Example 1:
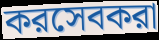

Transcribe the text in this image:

করসেবকরা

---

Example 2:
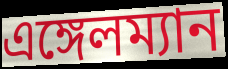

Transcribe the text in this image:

এঙ্গেলম্যান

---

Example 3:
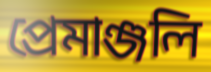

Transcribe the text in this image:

প্রেমাঞ্জলি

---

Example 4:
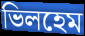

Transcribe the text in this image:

ভিলহেম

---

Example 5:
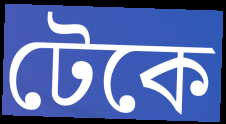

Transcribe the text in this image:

টেকে